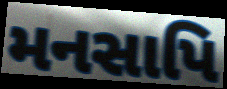
મનસાપિ